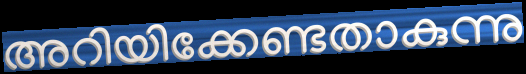
അറിയിക്കേണ്ടതാകുന്നു